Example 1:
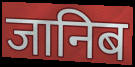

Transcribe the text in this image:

जानिब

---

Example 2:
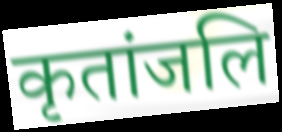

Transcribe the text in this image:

कृतांजलि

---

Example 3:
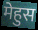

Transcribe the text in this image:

मेहुस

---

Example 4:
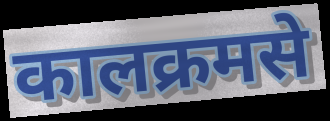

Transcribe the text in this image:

कालक्रमसे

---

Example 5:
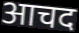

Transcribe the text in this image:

आचद